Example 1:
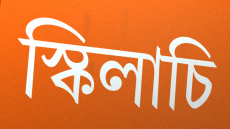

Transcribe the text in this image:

স্কিলাচি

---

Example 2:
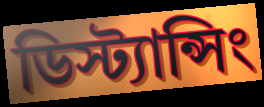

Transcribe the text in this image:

ডিস্ট্যান্সিং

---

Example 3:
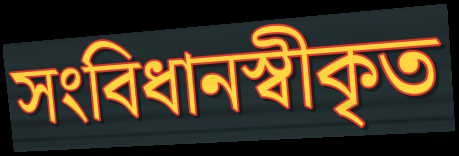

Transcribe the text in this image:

সংবিধানস্বীকৃত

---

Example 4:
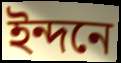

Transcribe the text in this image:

ইন্দনে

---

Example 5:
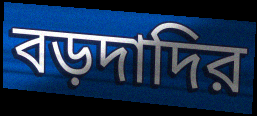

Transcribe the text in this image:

বড়দাদির